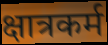
क्षात्रकर्म